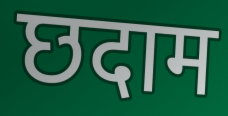
छदाम